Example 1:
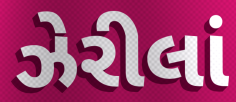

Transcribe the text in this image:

ઝેરીલાં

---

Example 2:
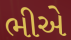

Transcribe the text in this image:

ભીએ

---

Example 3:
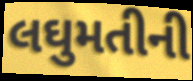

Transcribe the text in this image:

લઘુમતીની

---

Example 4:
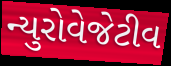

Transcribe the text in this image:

ન્યુરોવેજેટીવ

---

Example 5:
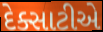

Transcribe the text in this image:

દેક્સાટીએ